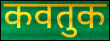
कवतुक